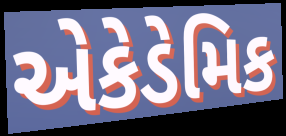
એકેડેમિક